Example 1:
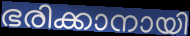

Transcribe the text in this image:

ഭരിക്കാനായി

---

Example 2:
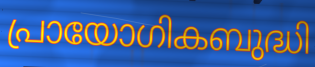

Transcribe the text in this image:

പ്രായോഗികബുദ്ധി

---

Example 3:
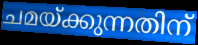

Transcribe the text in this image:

ചമയ്ക്കുന്നതിന്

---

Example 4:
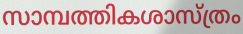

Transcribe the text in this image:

സാമ്പത്തികശാസ്ത്രം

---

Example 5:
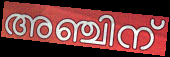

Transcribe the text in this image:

അഞ്ചിന്